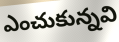
ఎంచుకున్నవి